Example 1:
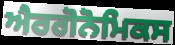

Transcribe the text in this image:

ਐਰਗੋਨੋਮਿਕਸ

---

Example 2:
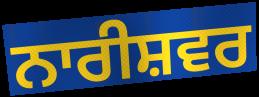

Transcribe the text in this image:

ਨਾਰੀਸ਼ਵਰ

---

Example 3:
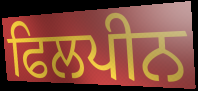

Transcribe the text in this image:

ਫਿਲਪੀਨ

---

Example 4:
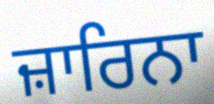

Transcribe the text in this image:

ਜ਼ਾਰਿਨਾ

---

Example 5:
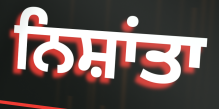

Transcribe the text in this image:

ਨਿਸ਼ਾਂਤਾ